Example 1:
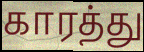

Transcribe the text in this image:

காரத்து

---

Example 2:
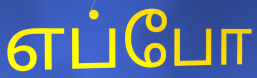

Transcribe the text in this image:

எப்போ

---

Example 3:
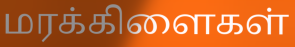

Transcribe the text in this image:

மரக்கிளைகள்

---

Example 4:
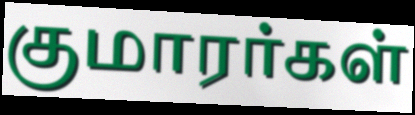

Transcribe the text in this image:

குமாரர்கள்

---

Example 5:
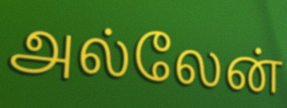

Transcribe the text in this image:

அல்லேன்